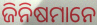
ଜିନିଷମାନେ